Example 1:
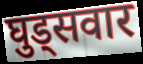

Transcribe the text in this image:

घुड्सवार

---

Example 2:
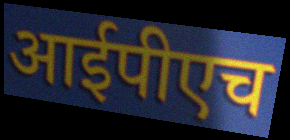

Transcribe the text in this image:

आईपीएच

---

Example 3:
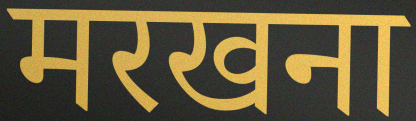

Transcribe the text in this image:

मरखना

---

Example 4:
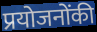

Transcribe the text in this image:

प्रयोजनोंकी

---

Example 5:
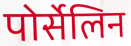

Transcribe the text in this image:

पोर्सेलिन